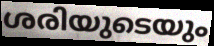
ശരിയുടെയും